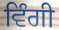
ਵਿੰਗੀ